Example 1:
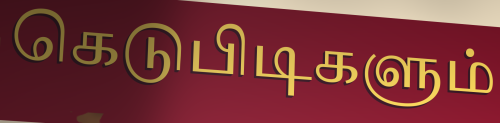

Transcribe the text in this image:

கெடுபிடிகளும்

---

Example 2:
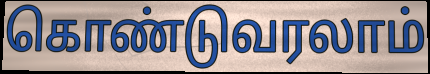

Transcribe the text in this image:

கொண்டுவரலாம்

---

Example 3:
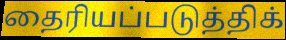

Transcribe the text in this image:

தைரியப்படுத்திக்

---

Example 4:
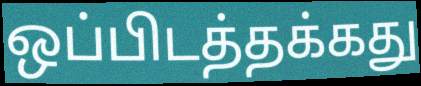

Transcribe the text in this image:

ஒப்பிடத்தக்கது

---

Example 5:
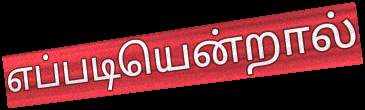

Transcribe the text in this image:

எப்படியென்றால்